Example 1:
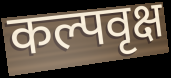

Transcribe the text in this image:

कल्‍पवृक्ष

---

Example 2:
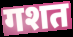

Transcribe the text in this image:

गशत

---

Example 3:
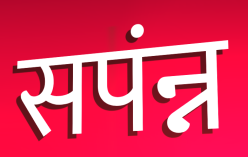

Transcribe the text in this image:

सपंन्न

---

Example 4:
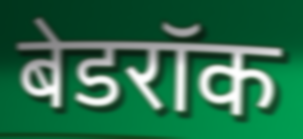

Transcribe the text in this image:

बेडरॉक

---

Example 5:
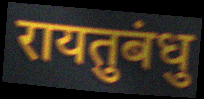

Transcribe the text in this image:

रायतुबंधु